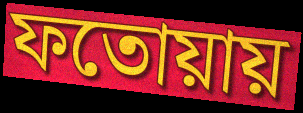
ফতোয়ায়